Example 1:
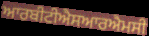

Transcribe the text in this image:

ਆਰਬੀਟੀਐਸਆਰਐਮਸੀ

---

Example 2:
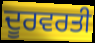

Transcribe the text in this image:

ਦੂਰਵਰਤੀ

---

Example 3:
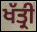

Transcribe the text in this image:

ਖੱਤ੍ਰੀ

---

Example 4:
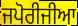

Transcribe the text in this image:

ਜਪੋਰੀਜੀਆ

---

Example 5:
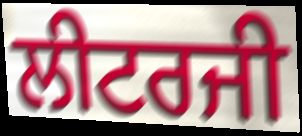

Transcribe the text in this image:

ਲੀਟਰਜੀ